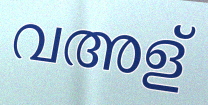
വഅള്